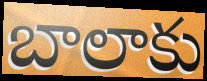
బాలాకు